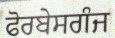
ਫੋਰਬੇਸਗੰਜ